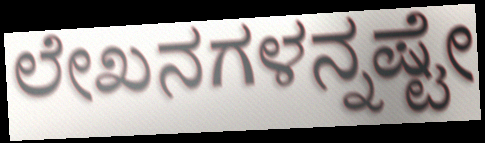
ಲೇಖನಗಳನ್ನಷ್ಟೇ